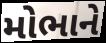
મોભાને